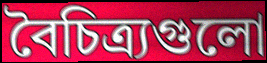
বৈচিত্র্যগুলো